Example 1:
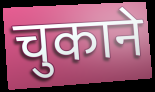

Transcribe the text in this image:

चुकाने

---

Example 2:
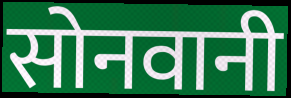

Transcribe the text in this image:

सोनवानी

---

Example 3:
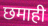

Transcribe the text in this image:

छमाही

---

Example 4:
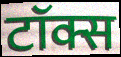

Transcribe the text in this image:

टॉक्स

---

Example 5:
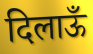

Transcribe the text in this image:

दिलाऊँ